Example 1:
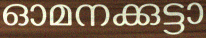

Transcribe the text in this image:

ഓമനക്കുട്ടാ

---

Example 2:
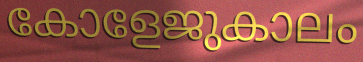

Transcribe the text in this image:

കോളേജുകാലം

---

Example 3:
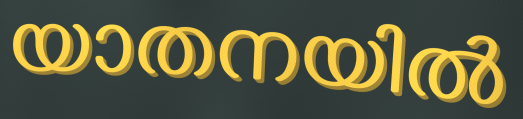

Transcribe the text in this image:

യാതനയിൽ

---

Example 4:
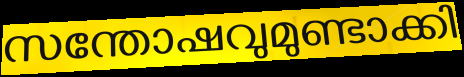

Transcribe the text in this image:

സന്തോഷവുമുണ്ടാക്കി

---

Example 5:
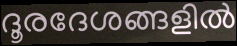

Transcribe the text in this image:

ദൂരദേശങ്ങളിൽ